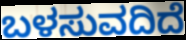
ಬಳಸುವದಿದೆ